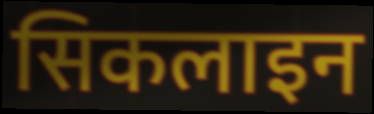
सिकलाइन